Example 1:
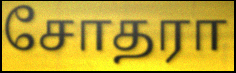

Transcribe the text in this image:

சோதரா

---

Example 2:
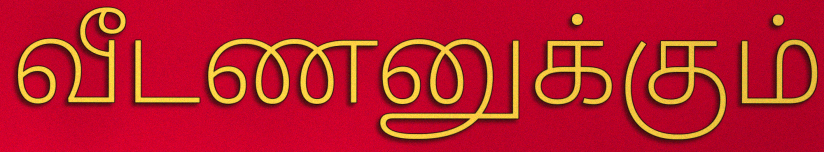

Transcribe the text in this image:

வீடணனுக்கும்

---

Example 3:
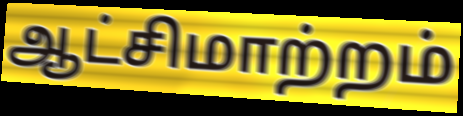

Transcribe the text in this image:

ஆட்சிமாற்றம்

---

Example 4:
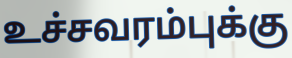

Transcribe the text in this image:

உச்சவரம்புக்கு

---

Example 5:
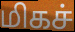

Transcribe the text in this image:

மிகச்